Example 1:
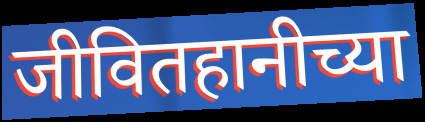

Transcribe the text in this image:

जीवितहानीच्या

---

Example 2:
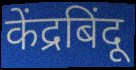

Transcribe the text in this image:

केंद्रबिंदू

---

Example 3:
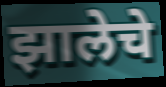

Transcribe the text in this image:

झालेचे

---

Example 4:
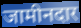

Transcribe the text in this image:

जामीनदार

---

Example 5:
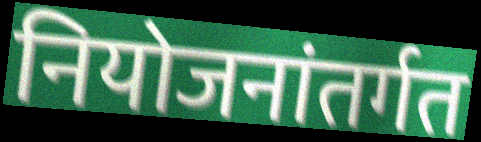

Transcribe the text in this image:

नियोजनांतर्गत